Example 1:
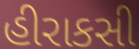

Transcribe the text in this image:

હીરાકસી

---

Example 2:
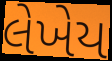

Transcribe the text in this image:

લેખેય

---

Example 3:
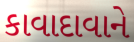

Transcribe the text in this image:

કાવાદાવાને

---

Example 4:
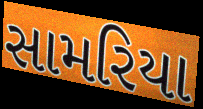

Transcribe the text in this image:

સામરિયા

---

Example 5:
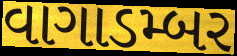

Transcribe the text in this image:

વાગાડમ્બર